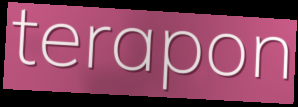
terapon